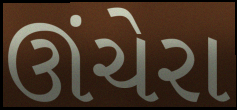
ઊંચેરા